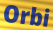
Orbi